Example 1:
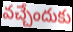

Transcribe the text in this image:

వచ్చేందుకు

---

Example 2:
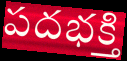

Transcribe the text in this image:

పదభక్తి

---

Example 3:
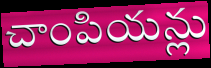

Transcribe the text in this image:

చాంపియన్లు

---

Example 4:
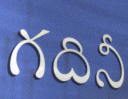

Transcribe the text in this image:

గదినీ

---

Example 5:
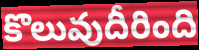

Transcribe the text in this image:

కొలువుదీరింది